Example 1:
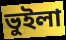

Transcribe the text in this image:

ভুইলা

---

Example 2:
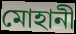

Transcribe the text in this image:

মোহানী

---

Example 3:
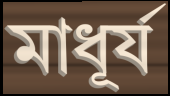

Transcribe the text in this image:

মাধূর্য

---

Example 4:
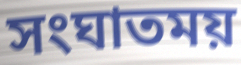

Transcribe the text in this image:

সংঘাতময়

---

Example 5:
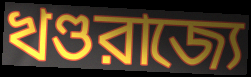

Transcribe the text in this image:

খণ্ডরাজ্যে